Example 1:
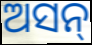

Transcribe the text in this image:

ଅସନ୍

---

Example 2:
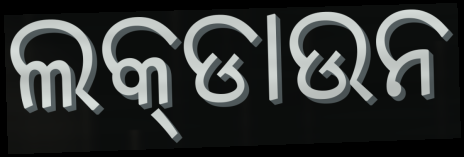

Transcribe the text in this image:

ଲକ୍‌ଡାଉନ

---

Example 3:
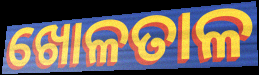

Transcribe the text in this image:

ଖୋଳତାଳ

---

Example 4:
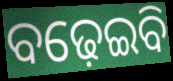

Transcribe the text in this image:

ବଢ଼େଇବି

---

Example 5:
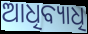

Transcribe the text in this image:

ଆଧିବ୍ୟାଧି